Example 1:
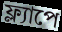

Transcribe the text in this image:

ফ্ল্যাপে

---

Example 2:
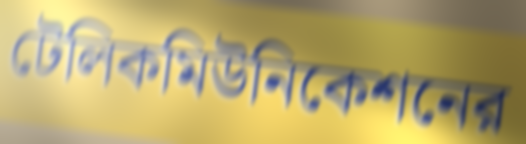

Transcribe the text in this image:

টেলিকমিউনিকেশনের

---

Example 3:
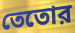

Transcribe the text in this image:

তেতোর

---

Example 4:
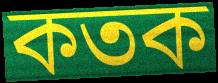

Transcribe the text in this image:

কতক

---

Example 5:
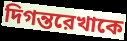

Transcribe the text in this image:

দিগন্তরেখাকে